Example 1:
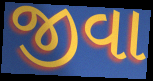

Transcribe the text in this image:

જીવા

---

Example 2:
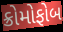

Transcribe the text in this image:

ક્રોમોફોબ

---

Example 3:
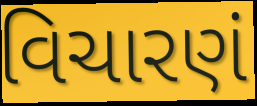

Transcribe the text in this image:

વિચારણં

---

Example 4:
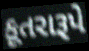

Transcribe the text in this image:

કૂતરારૂપે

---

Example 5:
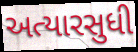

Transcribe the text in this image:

અત્યારસુધી